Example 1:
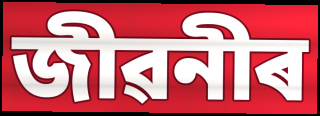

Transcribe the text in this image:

জীৱনীৰ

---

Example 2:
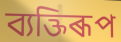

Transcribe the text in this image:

ব্যক্তিৰূপ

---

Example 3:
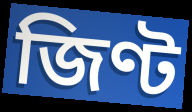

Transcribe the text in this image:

জিণ্ট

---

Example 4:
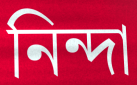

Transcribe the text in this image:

নিন্দা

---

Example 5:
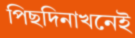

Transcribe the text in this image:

পিছদিনাখনেই